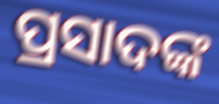
ପ୍ରସାଦଙ୍କ